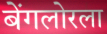
बेंगलोरला